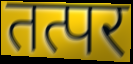
तत्पर